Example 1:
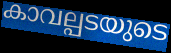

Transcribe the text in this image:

കാവല്പടയുടെ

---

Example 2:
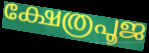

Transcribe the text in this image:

ക്ഷേത്രപൂജ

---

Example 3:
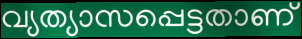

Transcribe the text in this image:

വ്യത്യാസപ്പെട്ടതാണ്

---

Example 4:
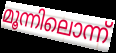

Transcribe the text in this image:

മൂന്നിലൊന്ന്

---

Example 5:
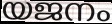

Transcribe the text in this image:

യജനം